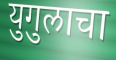
युगुलाचा